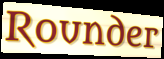
Rounder